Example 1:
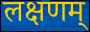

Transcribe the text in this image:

लक्षणम्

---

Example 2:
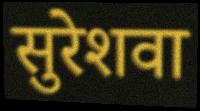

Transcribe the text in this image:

सुरेशवा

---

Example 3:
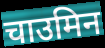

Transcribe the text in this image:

चाउमिन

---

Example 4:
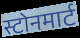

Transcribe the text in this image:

स्टोनमार्ट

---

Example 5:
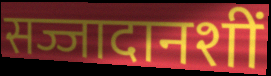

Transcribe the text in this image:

सज्जादानशीं